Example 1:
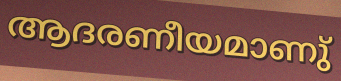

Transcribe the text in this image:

ആദരണീയമാണു്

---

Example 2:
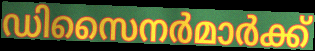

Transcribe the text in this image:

ഡിസൈനർമാർക്ക്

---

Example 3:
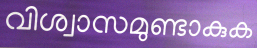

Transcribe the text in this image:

വിശ്വാസമുണ്ടാകുക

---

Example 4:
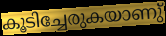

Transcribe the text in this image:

കൂടിച്ചേരുകയാണു്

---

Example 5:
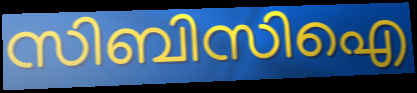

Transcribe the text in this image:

സിബിസിഐ